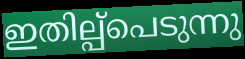
ഇതില്പ്പെടുന്നു